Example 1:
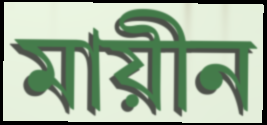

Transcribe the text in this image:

মায়ীন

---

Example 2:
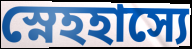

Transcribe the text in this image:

স্নেহহাস্যে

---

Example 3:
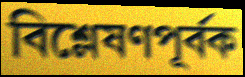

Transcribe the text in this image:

বিশ্লেষণপূর্বক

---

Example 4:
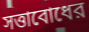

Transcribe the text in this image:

সত্তাবোধের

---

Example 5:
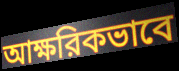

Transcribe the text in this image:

আক্ষরিকভাবে